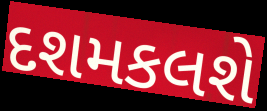
દશમકલશે